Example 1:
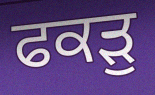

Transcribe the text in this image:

ਫਕੜੁ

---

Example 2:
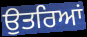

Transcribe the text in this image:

ਉਤਰਿਆਂ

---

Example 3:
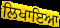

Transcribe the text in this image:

ਲਿਖਾਇਆ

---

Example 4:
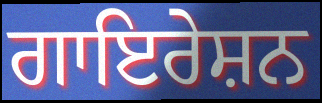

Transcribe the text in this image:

ਗਾਇਰੇਸ਼ਨ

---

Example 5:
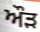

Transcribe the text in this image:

ਔਡ਼